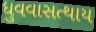
ધુવવાસત્થાય